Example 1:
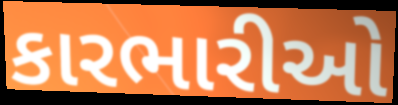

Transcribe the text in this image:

કારભારીઓ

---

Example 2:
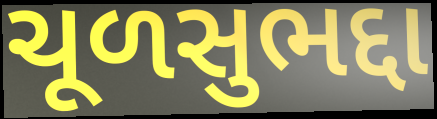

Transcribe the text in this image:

ચૂળસુભદ્દા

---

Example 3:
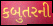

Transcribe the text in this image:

કબુતરની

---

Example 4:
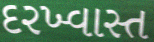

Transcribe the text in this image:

દરખ્વાસ્ત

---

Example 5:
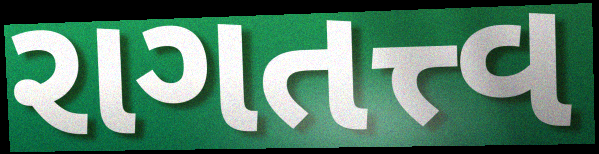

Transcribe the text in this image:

રાગતત્ત્વ